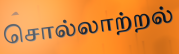
சொல்லாற்றல்